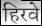
हिरवे